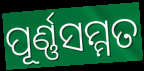
ପୂର୍ଣ୍ଣସମ୍ମତ